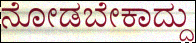
ನೋಡಬೇಕಾದ್ದು